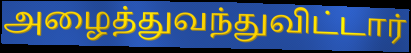
அழைத்துவந்துவிட்டார்